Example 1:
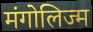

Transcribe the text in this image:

मंगोलिज्म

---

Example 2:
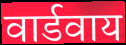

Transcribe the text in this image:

वार्डवाय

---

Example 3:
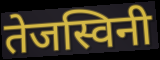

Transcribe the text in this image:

तेजस्विनी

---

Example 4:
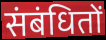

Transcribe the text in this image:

संबंधितों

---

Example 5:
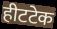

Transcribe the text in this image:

हीटटेक